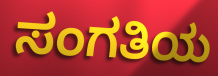
ಸಂಗತಿಯ